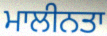
ਮਾਲੀਨਤਾ